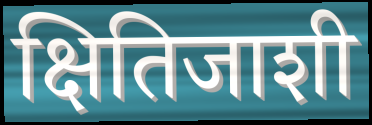
क्षितिजाशी